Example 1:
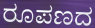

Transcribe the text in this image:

ರೂಪಣದ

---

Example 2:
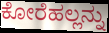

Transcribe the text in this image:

ಕೋರೆಹಲ್ಲನ್ನು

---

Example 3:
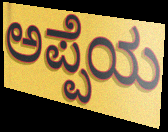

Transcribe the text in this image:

ಅಪ್ಪೆಯ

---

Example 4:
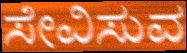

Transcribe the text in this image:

ಸೇವಿಸುವ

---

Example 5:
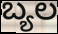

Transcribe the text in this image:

ಬ್ಯಲ